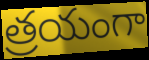
త్రయంగా